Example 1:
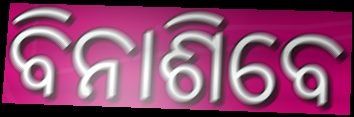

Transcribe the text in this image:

ବିନାଶିବେ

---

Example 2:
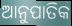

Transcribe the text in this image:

ଆନୁପାତିକ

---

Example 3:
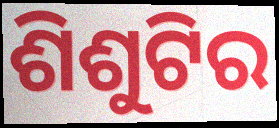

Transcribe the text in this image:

ଶିଶୁଟିର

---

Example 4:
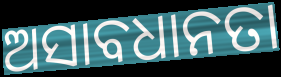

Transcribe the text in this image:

ଅସାବଧାନତା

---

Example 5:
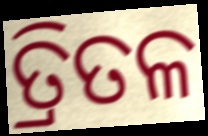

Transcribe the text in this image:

ତ୍ରିତଳ